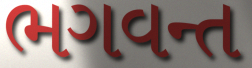
ભગવન્ત